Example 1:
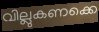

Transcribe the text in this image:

വില്ലുകണക്കെ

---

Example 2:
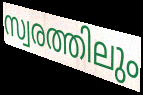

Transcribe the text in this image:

സ്വരത്തിലും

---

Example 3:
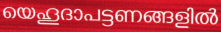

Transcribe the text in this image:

യെഹൂദാപട്ടണങ്ങളിൽ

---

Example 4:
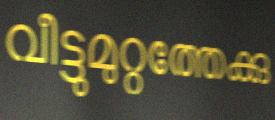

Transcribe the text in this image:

വീട്ടുമുറ്റത്തേക്കു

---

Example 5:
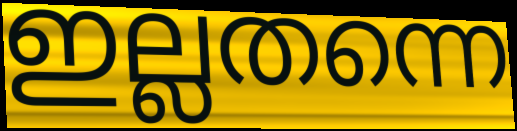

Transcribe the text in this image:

ഇല്ലതന്നെ